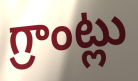
గ్రాంట్లు